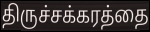
திருச்சக்கரத்தை